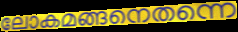
ലോകമങ്ങനെതന്നെ